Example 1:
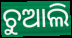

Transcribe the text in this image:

ଚୁଆଲି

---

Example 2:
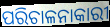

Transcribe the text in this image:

ପରିଚାଳନାକାରୀ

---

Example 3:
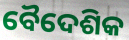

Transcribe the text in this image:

ବୈଦେଶିକ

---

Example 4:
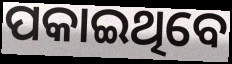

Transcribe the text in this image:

ପକାଇଥିବେ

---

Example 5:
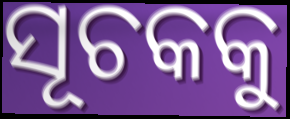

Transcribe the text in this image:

ସୂଚକକୁ